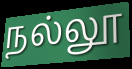
நல்லூ